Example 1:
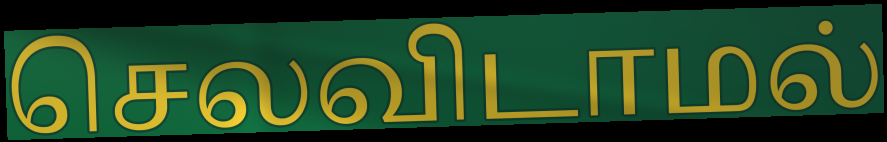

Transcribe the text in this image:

செலவிடாமல்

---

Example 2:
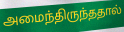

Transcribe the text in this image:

அமைந்திருந்ததால்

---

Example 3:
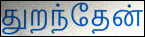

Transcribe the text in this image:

துறந்தேன்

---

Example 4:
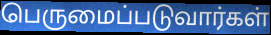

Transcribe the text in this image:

பெருமைப்படுவார்கள்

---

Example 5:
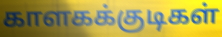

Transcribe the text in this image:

காளகக்குடிகள்